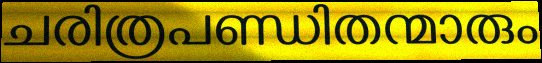
ചരിത്രപണ്ഡിതന്മാരും